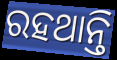
ରହଥାନ୍ତି